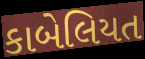
કાબેલિયત